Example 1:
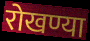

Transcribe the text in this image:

रोखण्या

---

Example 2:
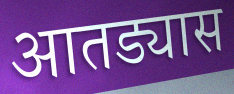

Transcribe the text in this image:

आतड्यास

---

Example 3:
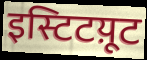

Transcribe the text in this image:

इस्टिटय़ूट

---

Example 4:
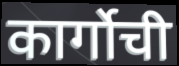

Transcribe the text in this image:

कार्गोची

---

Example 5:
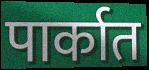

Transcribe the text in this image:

पार्कात